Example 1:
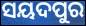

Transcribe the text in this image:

ସୟଦପୁର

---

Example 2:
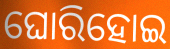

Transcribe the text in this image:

ଘୋରିହୋଇ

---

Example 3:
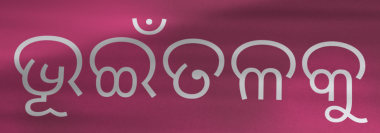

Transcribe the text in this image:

ଭୂଇଁତଳକୁ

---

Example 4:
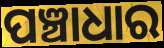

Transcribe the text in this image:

ପଞ୍ଚାଧାର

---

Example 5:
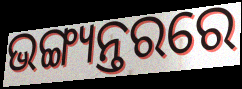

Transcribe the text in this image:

ଭଙ୍ଗ୍ୟନ୍ତରରେ